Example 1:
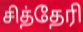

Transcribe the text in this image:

சித்தேரி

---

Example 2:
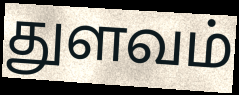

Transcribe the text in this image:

துளவம்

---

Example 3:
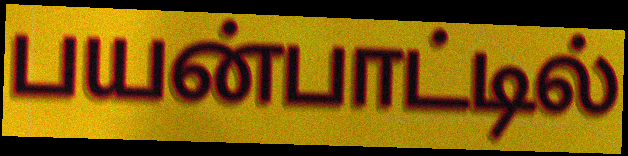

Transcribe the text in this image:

பயன்பாட்டில்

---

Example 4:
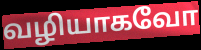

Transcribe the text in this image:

வழியாகவோ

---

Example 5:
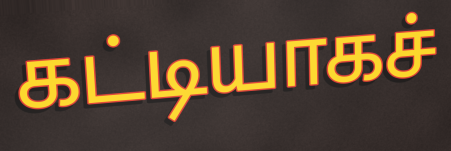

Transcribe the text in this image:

கட்டியாகச்